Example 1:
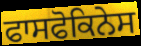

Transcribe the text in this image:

ਫਾਸਫੋਕਿਨੇਸ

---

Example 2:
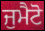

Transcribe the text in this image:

ਜੁਮੈਟੋ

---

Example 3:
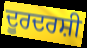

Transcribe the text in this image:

ਦੂਰਦਰਸ਼ੀ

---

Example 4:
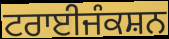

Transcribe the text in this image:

ਟਰਾਈਜੰਕਸ਼ਨ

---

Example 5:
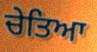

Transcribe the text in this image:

ਚੇਤਿਆ